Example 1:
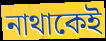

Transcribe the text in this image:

নাথাকেই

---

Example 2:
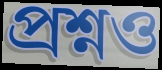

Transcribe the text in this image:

প্ৰশ্নও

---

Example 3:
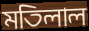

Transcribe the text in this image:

মতিলাল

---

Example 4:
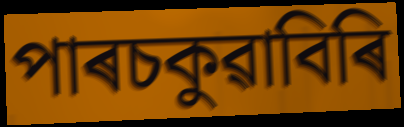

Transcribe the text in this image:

পাৰচকুৱাবিৰি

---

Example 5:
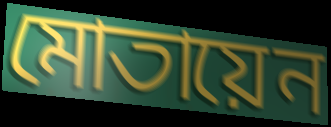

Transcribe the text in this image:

মোতায়েন